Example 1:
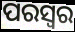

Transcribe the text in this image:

ପରସ୍ୱର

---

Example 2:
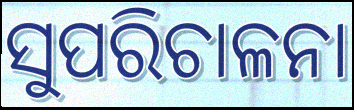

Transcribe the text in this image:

ସୁପରିଚାଳନା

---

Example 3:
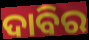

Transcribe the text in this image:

ଦାବିର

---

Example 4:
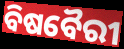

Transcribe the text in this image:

ବିଷବୈରୀ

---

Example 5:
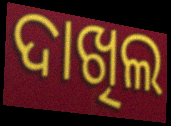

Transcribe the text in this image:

ଦାଖିଲ